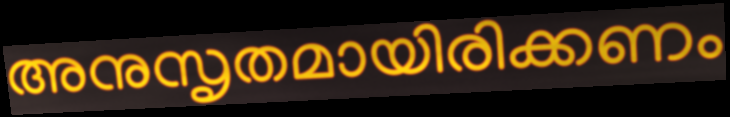
അനുസൃതമായിരിക്കണം